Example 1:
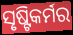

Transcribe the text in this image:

ସୃଷ୍ଟିକର୍ମର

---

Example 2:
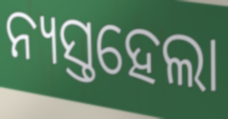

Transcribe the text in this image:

ନ୍ୟସ୍ତହେଲା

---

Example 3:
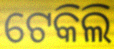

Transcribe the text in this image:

ଟେକିଲି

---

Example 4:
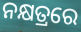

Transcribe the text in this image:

ନକ୍ଷତ୍ରରେ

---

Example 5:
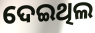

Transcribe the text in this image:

ଦେଇଥିଲ